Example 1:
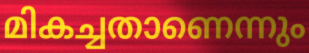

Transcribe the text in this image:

മികച്ചതാണെന്നും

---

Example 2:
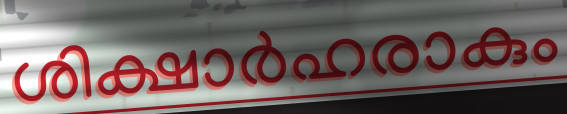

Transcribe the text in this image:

ശിക്ഷാർഹരാകും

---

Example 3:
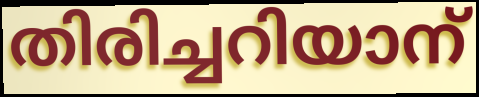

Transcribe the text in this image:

തിരിച്ചറിയാന്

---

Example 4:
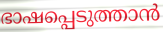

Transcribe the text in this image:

ഭാഷപ്പെടുത്താൻ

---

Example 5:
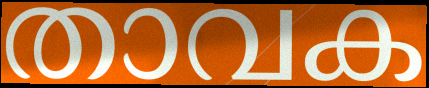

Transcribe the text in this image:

താവക